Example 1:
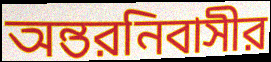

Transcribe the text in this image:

অন্তরনিবাসীর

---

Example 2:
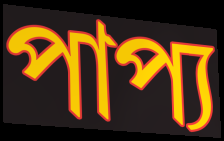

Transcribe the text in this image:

পাপ্য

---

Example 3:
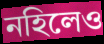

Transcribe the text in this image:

নহিলেও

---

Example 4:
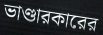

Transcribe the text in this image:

ভাণ্ডারকারের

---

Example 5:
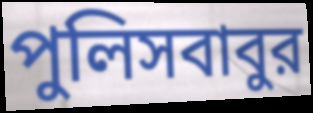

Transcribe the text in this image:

পুলিসবাবুর